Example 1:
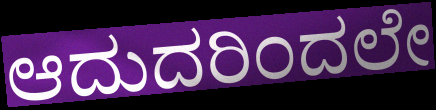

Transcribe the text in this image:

ಆದುದರಿಂದಲೇ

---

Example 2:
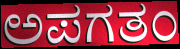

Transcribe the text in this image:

ಅಪಗತಂ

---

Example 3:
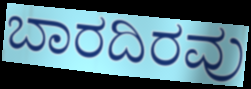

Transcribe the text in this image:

ಬಾರದಿರವು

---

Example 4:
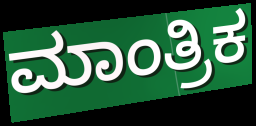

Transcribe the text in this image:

ಮಾಂತ್ರಿಕ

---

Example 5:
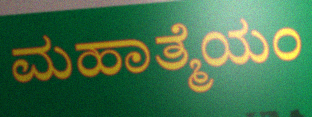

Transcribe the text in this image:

ಮಹಾತ್ಮೆಯಂ